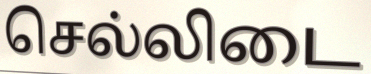
செல்லிடை